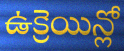
ఉక్రెయిన్లో